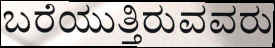
ಬರೆಯುತ್ತಿರುವವರು